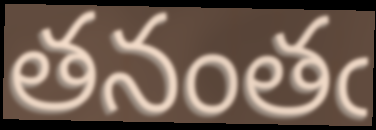
తనంతఁ